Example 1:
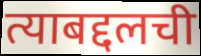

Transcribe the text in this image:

त्याबद्दलची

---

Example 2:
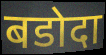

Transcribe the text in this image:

बडोदा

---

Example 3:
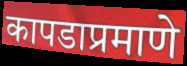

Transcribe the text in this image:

कापडाप्रमाणे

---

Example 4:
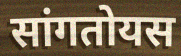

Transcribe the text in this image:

सांगतोयस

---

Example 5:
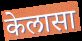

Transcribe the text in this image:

केलासा